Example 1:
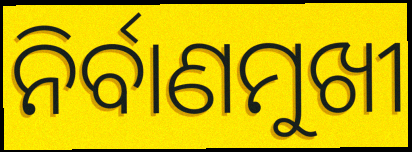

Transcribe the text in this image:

ନିର୍ବାଣମୁଖୀ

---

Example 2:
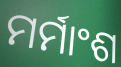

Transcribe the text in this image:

ମର୍ମାଂଶ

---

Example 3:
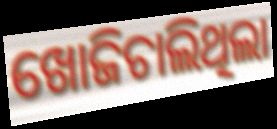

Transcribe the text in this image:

ଖୋଜିଚାଲିଥିଲା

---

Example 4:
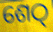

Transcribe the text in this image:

ଶେଠ୍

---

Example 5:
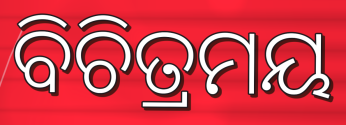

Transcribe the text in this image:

ବିଚିତ୍ରମୟ